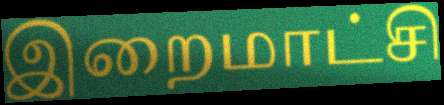
இறைமாட்சி